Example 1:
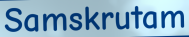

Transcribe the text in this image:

Samskrutam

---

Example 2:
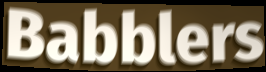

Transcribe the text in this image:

Babblers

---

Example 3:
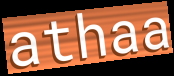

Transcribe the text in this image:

athaa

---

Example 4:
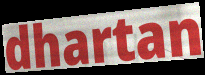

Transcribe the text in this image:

dhartan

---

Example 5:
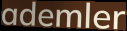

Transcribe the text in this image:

ademler